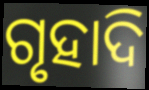
ଗୃହାଦି